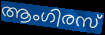
ആംഗിരസ്